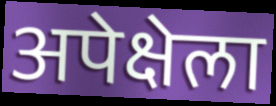
अपेक्षेला